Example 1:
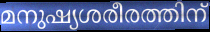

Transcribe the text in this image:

മനുഷ്യശരീരത്തിന്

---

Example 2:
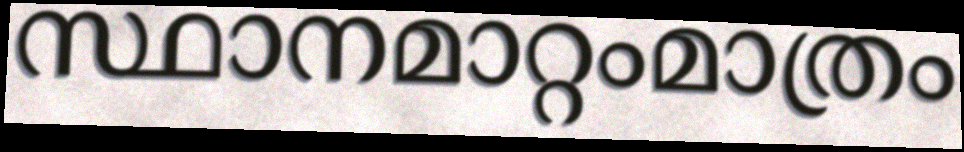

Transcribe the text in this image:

സ്ഥാനമാറ്റംമാത്രം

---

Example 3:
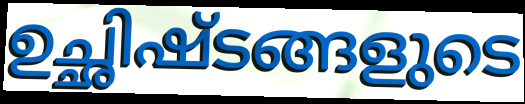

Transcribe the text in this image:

ഉച്ഛിഷ്ടങ്ങളുടെ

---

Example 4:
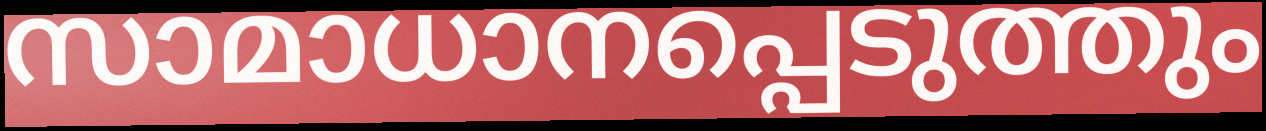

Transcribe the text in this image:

സാമാധാനപ്പെടുത്തും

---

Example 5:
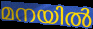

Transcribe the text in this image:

മനയിൽ